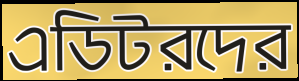
এডিটরদের